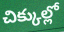
చిక్కుల్లో